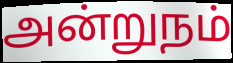
அன்றுநம்